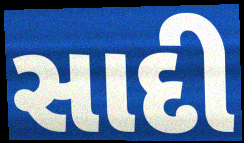
સાદી